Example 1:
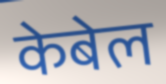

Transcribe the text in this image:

केबेल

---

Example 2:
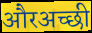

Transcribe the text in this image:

औरअच्छी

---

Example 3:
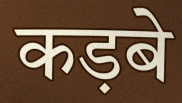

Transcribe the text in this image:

कड़बे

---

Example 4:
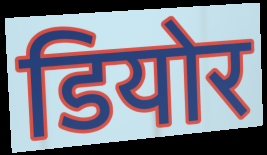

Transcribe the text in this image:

डियोर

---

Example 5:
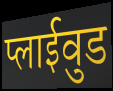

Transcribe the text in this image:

प्‍लाईवुड